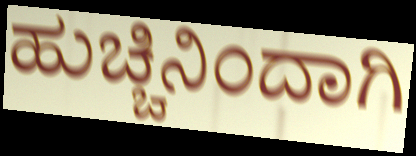
ಹುಚ್ಚಿನಿಂದಾಗಿ